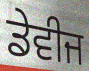
ਡੇਵੀਜ